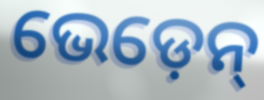
ଭେଡ଼େନ୍